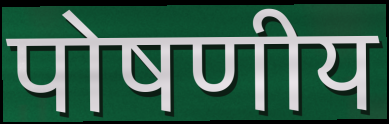
पोषणीय